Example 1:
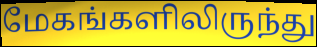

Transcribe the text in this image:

மேகங்களிலிருந்து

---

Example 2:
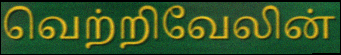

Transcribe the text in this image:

வெற்றிவேலின்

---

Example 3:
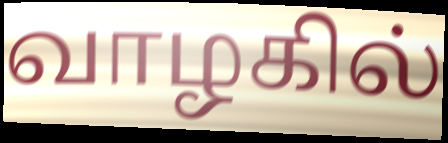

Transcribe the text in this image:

வாழகில்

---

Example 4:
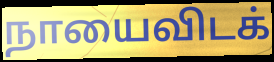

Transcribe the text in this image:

நாயைவிடக்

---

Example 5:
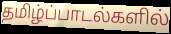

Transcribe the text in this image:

தமிழ்ப்பாடல்களில்